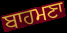
ਬਾਹਮਣਾ